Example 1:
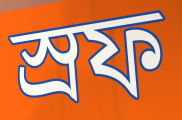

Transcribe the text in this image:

স্রফ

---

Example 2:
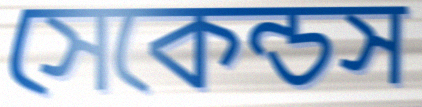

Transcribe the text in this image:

সেকেন্ডস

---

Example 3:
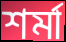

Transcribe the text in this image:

শর্মা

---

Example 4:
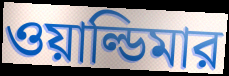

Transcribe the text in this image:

ওয়াল্ডিমার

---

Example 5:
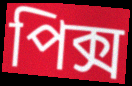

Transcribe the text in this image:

পিক্স